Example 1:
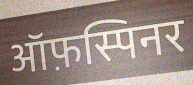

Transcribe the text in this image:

ऑफ़स्पिनर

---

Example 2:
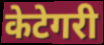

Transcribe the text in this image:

केटेगरी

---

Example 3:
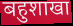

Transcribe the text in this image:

बहुशाखा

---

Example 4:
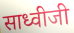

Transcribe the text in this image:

साध्वीजी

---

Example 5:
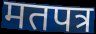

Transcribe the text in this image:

मतपत्र